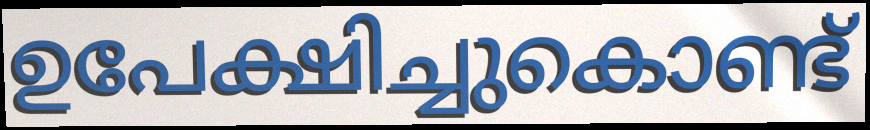
ഉപേക്ഷിച്ചുകൊണ്ട്